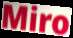
Miro